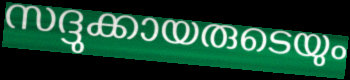
സദ്ദുക്കായരുടെയും